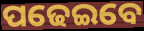
ପଢେଇବେ